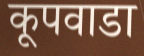
कूपवाडा